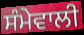
ਸੰਮੇਵਾਲੀ